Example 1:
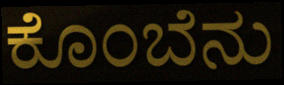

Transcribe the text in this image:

ಕೊಂಬೆನು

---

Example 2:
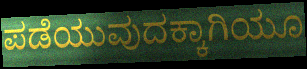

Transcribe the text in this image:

ಪಡೆಯುವುದಕ್ಕಾಗಿಯೂ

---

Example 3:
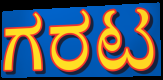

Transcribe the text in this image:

ಗರಟ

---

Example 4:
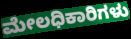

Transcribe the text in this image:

ಮೇಲಧಿಕಾರಿಗಳು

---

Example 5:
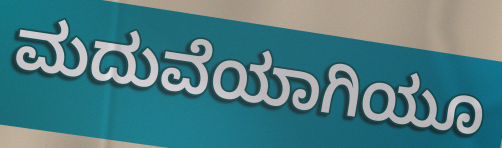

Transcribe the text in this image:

ಮದುವೆಯಾಗಿಯೂ